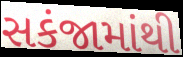
સકંજામાંથી